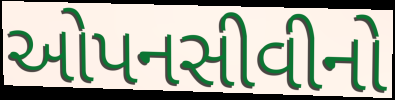
ઓપનસીવીનો